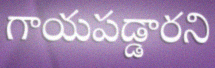
గాయపడ్డారని